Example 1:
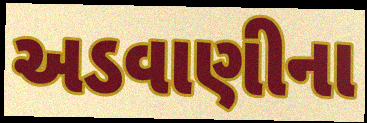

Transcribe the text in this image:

અડવાણીના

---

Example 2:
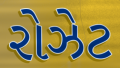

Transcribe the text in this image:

રોઝેટ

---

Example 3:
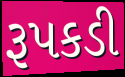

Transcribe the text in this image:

રૂપકડી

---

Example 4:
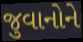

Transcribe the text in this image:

જુવાનોને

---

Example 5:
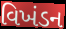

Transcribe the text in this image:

વિખંડન